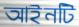
আইনটি